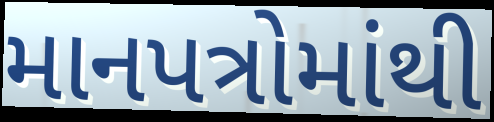
માનપત્રોમાંથી